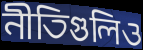
নীতিগুলিও